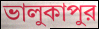
ভালুকাপুর